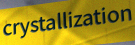
crystallization